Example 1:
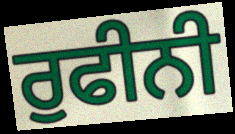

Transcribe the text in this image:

ਰੁਫੀਨੀ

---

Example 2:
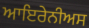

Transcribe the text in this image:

ਆਇਰੇਨੀਅਸ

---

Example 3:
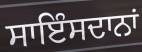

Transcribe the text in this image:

ਸਾਇੰਸਦਾਨਾਂ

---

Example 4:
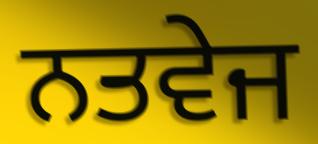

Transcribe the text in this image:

ਨਤਵੇਜ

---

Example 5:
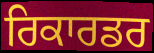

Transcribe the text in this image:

ਰਿਕਾਰਡਰ